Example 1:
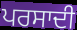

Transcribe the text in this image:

ਪਰਸਾਦੀ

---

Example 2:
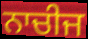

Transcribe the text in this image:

ਨਾਚੀਜ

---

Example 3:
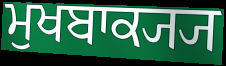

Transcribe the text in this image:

ਮੁਖਬਾਕ੍ਯ੍ਯ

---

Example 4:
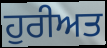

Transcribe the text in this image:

ਹੁਰੀਅਤ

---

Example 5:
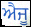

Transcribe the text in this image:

ਐਜੂ